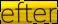
efter